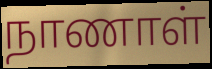
நாணாள்